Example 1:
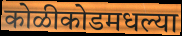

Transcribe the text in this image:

कोळीकोडमधल्या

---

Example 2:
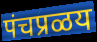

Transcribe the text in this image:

पंचप्रळय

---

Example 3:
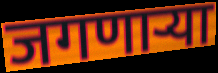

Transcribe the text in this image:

जगणाऱ्या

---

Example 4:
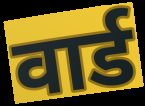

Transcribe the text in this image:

वार्ड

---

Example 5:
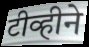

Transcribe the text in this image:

टीव्हीने